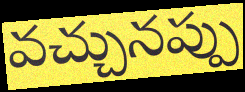
వచ్చునప్పు